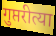
गुप्तरीत्या